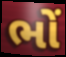
ભોં